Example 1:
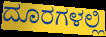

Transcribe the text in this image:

ದೂರಗಳಲ್ಲಿ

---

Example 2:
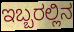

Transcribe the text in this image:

ಇಬ್ಬರಲ್ಲಿನ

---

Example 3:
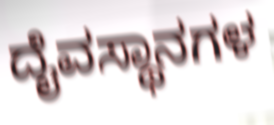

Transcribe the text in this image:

ದೈವಸ್ಥಾನಗಳ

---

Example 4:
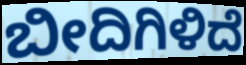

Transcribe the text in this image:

ಬೀದಿಗಿಳಿದೆ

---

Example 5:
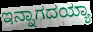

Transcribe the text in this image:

ಇನ್ನಾಗದಯ್ಯಾ